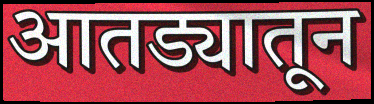
आतड्यातून